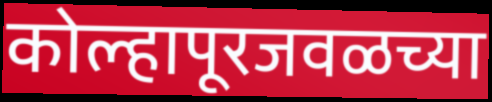
कोल्हापूरजवळच्या